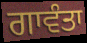
ਗਾਵੰਤਾ